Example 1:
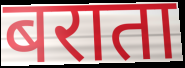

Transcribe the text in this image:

बराता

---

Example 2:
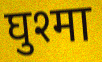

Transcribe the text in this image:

घुश्मा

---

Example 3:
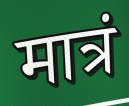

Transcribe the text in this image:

मात्रं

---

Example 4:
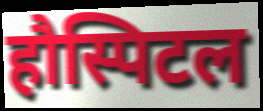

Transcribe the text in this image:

हौस्पिटल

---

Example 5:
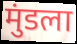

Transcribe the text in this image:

मुंडला